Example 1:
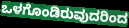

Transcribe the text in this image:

ಒಳಗೊಂಡಿರುವುದರಿಂದ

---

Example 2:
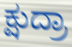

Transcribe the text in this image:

ಕ್ಷುದ್ರಾ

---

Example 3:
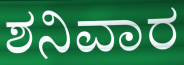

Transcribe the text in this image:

ಶನಿವಾರ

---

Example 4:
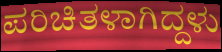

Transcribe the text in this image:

ಪರಿಚಿತಳಾಗಿದ್ದಳು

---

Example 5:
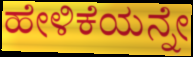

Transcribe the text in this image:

ಹೇಳಿಕೆಯನ್ನೇ